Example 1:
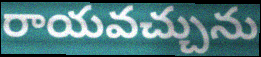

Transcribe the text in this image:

రాయవచ్చును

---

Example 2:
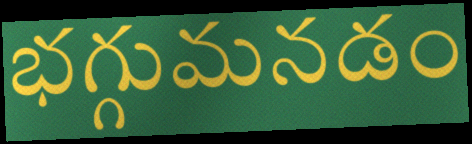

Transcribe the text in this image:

భగ్గుమనడం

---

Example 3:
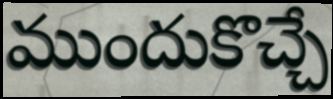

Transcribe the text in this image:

ముందుకొచ్చే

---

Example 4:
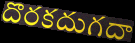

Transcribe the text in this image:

దొరకదుగదా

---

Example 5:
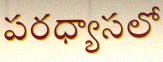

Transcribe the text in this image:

పరధ్యాసలో